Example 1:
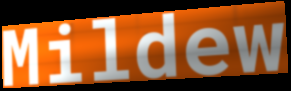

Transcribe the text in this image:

Mildew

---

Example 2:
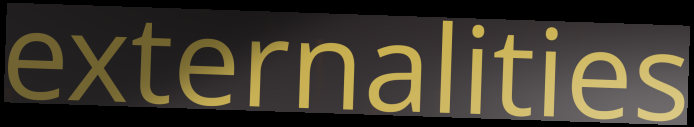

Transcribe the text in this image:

externalities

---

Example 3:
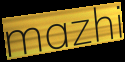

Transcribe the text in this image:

mazhi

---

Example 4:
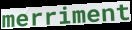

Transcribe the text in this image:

merriment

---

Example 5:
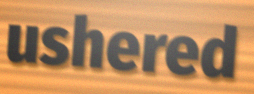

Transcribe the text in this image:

ushered